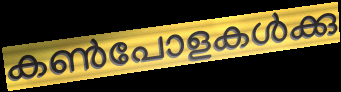
കൺപോളകൾക്കു